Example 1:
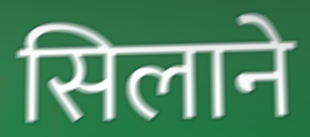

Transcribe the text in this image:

सिलाने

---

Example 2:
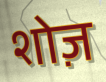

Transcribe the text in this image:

शोज़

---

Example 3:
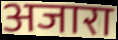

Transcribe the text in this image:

अजारा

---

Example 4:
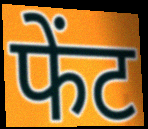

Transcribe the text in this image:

फेंट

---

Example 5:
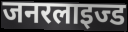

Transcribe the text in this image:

जनरलाइज्ड